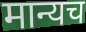
मान्यच